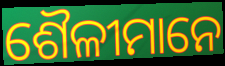
ଶୈଳୀମାନେ